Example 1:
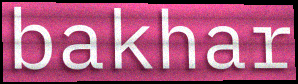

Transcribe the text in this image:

bakhar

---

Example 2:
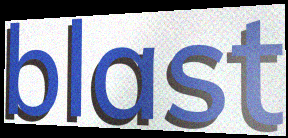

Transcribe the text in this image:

blast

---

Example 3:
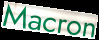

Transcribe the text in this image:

Macron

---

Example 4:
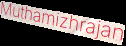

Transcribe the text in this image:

Muthamizhrajan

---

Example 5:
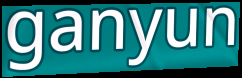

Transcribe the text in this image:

ganyun